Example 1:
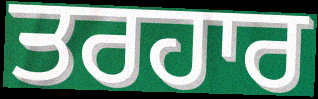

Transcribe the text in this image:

ਤਰਹਾਰ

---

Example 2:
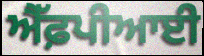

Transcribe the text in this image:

ਐੱਫ਼ਪੀਆਈ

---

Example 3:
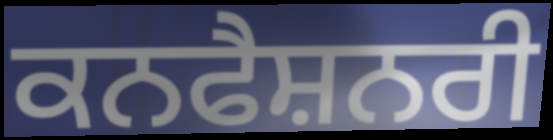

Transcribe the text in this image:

ਕਨਫੈਸ਼ਨਰੀ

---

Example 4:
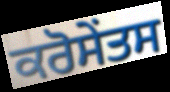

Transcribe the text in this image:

ਕਰੋਸੇਂਤਸ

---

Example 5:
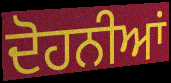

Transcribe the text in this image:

ਦੋਹਨੀਆਂ